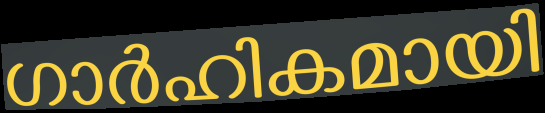
ഗാർഹികമായി